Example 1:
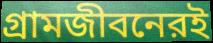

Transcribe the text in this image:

গ্রামজীবনেরই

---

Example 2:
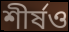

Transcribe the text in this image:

শীর্ষও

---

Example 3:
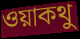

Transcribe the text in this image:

ওয়াকথু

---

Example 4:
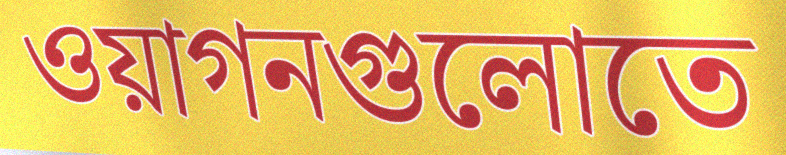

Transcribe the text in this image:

ওয়াগনগুলোতে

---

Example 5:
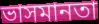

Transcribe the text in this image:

ভাসমানতা